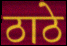
ठाठे